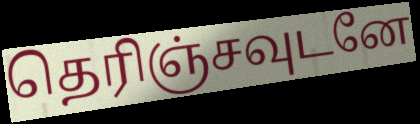
தெரிஞ்சவுடனே